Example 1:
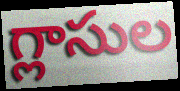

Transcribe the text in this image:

గ్లాసుల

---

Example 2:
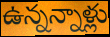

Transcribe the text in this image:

ఉన్నన్నాళ్లు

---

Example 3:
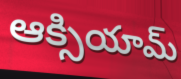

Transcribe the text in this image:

ఆక్సియామ్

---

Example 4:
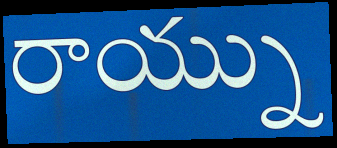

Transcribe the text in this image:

రాయ్ను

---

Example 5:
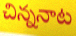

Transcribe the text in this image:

చిన్ననాట